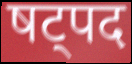
षट्पद